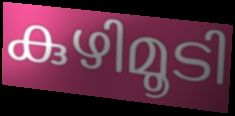
കുഴിമൂടി